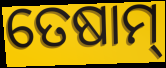
ତେଷାମ୍